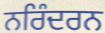
ਨਰਿੰਦਰਨ